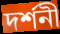
দৰ্শনী